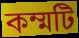
কম্মটি